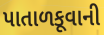
પાતાળકૂવાની